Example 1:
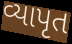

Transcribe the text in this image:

વ્યાપૃત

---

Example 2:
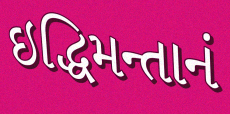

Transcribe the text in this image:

ઇદ્ધિમન્તાનં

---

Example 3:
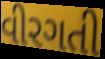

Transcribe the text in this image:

વીરગતી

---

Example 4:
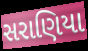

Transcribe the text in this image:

સરાણિયા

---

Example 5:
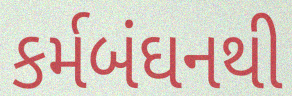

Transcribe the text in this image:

કર્મબંઘનથી